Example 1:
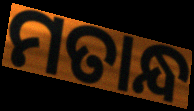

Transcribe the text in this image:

ମତାନ୍ଧ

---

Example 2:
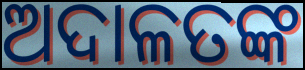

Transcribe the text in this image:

ଅଦାଳତଙ୍କ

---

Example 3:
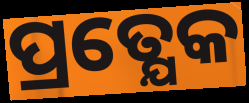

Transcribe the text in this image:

ପ୍ରତ୍ଯେକ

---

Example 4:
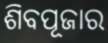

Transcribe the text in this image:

ଶିବପୂଜାର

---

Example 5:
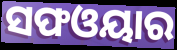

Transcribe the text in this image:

ସଫଓୟାର